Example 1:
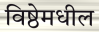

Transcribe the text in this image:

विष्ठेमधील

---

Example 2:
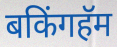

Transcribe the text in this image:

बकिंगहॅम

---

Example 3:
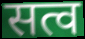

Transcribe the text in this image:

सत्व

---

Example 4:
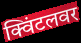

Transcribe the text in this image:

क्विंटलवर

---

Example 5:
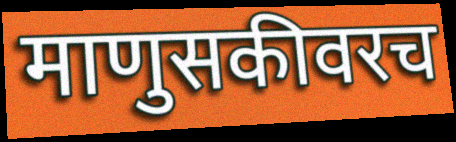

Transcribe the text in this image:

माणुसकीवरच